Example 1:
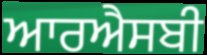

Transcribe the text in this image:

ਆਰਐਸਬੀ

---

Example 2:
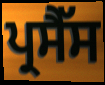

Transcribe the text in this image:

ਪ੍ਰਸੈੱਸ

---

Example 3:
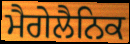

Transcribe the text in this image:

ਮੈਗੇਲੈਨਿਕ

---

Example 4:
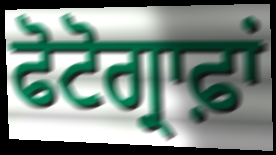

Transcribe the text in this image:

ਫੋਟੋਗ੍ਰਾਫ਼ਾਂ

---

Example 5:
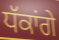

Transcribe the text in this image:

ਧੱਕਾਂਗੇ